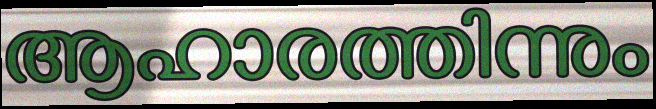
ആഹാരത്തിന്നും